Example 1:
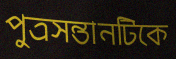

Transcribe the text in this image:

পুত্রসন্তানটিকে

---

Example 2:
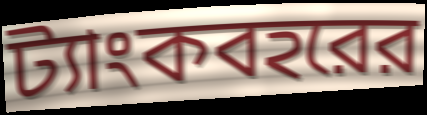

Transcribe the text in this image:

ট্যাংকবহরের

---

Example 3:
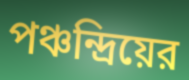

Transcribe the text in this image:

পঞ্চন্দ্রিয়ের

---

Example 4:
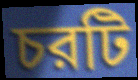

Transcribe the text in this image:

চরটি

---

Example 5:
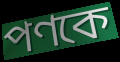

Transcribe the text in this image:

পণকে